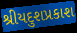
શ્રીયદુશપ્રકાશ